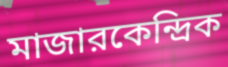
মাজারকেন্দ্রিক